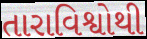
તારાવિશ્વોથી